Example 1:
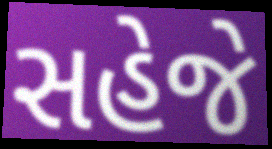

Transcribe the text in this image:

સહેજે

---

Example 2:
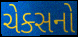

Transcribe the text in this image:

ચેક્સનો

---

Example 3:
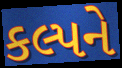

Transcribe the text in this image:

કલ્પને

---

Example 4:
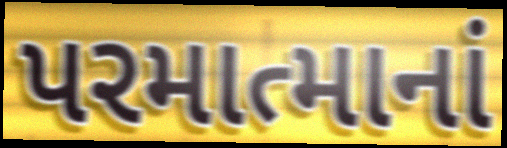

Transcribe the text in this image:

પરમાત્માનાં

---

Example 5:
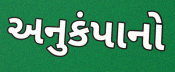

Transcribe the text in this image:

અનુકંપાનો